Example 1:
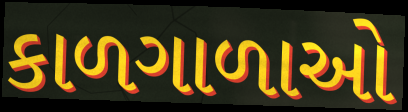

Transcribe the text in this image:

કાળગાળાઓ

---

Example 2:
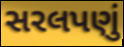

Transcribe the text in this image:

સરલપણું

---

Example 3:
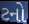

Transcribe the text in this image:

ટનો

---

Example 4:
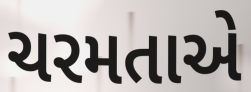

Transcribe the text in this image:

ચરમતાએ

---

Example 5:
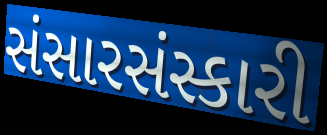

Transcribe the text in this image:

સંસારસંસ્કારી